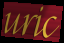
uric